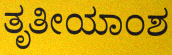
ತೃತೀಯಾಂಶ